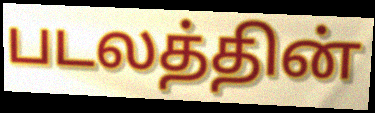
படலத்தின்